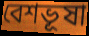
বেশভূষা